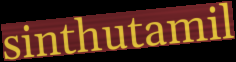
sinthutamil